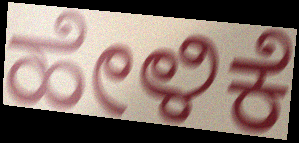
ಹೇಳಿಕೆ